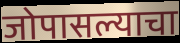
जोपासल्याचा